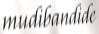
mudibandide